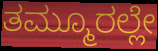
ತಮ್ಮೂರಲ್ಲೇ